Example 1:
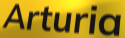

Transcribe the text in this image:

Arturia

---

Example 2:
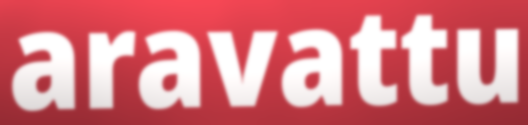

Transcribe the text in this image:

aravattu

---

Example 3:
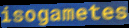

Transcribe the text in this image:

isogametes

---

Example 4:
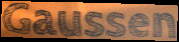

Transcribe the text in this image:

Gaussen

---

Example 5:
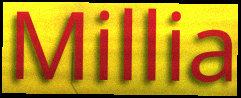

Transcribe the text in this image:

Millia